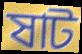
ষাট